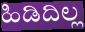
ಹಿಡಿದಿಲ್ಲ